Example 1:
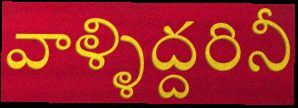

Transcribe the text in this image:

వాళ్ళిద్దరినీ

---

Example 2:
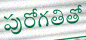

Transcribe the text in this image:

పురోగతితో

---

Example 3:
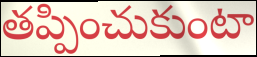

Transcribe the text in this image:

తప్పించుకుంటా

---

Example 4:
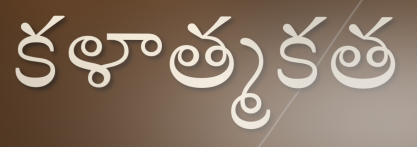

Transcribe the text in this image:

కళాత్మకత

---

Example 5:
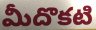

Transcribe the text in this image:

మీదొకటి